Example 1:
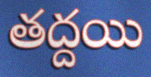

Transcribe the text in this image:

తద్దయి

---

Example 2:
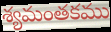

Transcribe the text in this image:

శ్యమంతకము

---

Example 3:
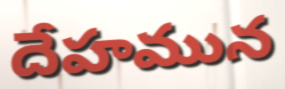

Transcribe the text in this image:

దేహమున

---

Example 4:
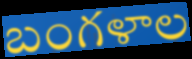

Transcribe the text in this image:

బంగళాల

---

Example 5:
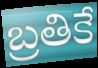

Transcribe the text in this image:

బ్రతికే